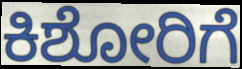
ಕಿಶೋರಿಗೆ